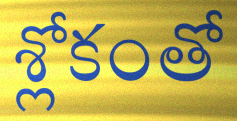
శ్లోకంతో